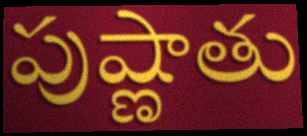
పుష్ణాతు